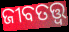
ଜୀବତତ୍ତ୍ୱ